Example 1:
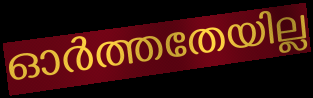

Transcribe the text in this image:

ഓർത്തതേയില്ല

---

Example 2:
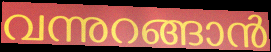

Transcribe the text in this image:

വന്നുറങ്ങാൻ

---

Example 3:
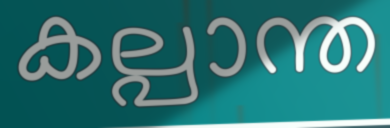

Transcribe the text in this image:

കല്പാന്ത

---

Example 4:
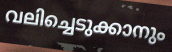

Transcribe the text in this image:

വലിച്ചെടുക്കാനും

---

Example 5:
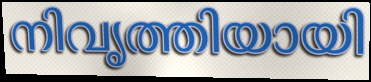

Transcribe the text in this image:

നിവൃത്തിയായി